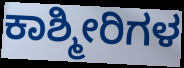
ಕಾಶ್ಮೀರಿಗಳ